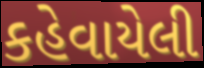
કહેવાયેલી